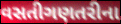
વસતીગણતરીના